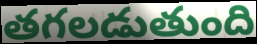
తగలడుతుంది